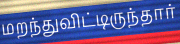
மறந்துவிட்டிருந்தார்